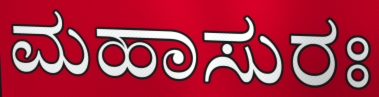
ಮಹಾಸುರಃ